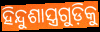
ହିନ୍ଦୁଶାସ୍ତ୍ରଗୁଡ଼ିକୁ